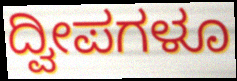
ದ್ವೀಪಗಳೂ